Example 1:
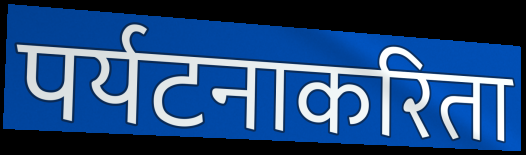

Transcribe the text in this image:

पर्यटनाकरिता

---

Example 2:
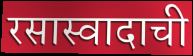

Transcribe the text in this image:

रसास्वादाची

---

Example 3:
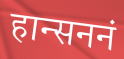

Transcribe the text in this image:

हान्सननं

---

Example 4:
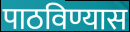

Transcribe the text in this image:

पाठविण्यास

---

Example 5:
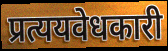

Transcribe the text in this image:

प्रत्ययवेधकारी